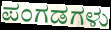
ಪಂಗಡಗಳು